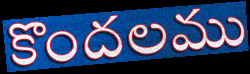
కొందలము